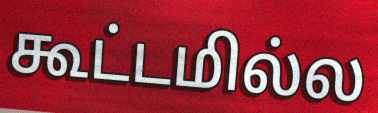
கூட்டமில்ல